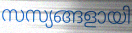
സസ്യങ്ങളായി